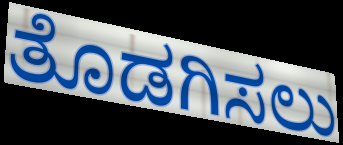
ತೊಡಗಿಸಲು